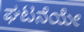
ಘಟನೆಯೇ